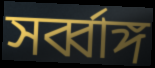
সর্ব্বাঙ্গ